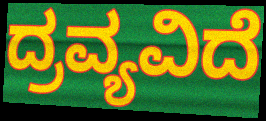
ದ್ರವ್ಯವಿದೆ